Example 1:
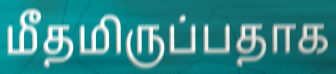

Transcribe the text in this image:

மீதமிருப்பதாக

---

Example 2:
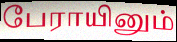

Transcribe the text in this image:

பேராயினும்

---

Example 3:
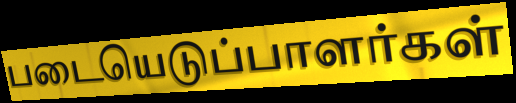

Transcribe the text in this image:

படையெடுப்பாளர்கள்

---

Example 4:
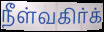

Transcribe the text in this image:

நீள்வகிர்க்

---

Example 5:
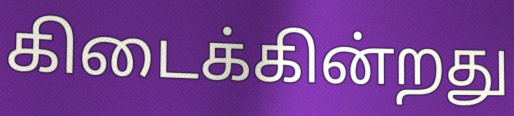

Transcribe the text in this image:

கிடைக்கின்றது